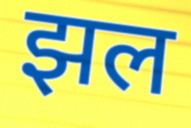
झल